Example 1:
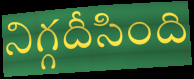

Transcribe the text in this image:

నిగ్గదీసింది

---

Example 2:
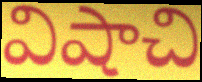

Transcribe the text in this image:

విషాచి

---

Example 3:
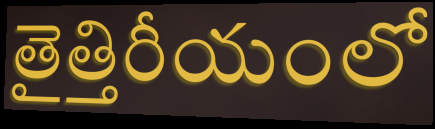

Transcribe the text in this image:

తైత్తిరీయంలో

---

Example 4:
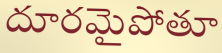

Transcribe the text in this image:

దూరమైపోతూ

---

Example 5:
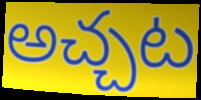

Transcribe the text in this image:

అచ్చట